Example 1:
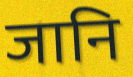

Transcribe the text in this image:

जानि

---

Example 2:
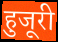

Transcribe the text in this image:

हुजूरी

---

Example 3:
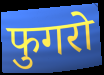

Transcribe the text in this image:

फुगरो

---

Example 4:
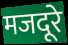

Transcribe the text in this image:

मजदूरे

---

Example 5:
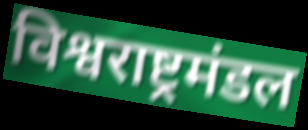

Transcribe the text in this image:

विश्वराष्ट्रमंडल